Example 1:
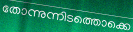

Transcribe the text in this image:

തോന്നുന്നിടത്തൊക്കെ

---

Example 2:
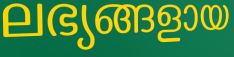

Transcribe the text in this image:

ലഭ്യങ്ങളായ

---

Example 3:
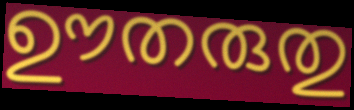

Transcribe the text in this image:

ഊതരുതു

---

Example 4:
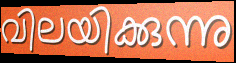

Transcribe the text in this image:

വിലയിക്കുന്നു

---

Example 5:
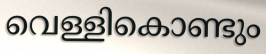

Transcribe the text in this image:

വെള്ളികൊണ്ടും